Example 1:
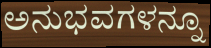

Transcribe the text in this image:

ಅನುಭವಗಳನ್ನೂ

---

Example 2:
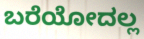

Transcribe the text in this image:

ಬರೆಯೋದಲ್ಲ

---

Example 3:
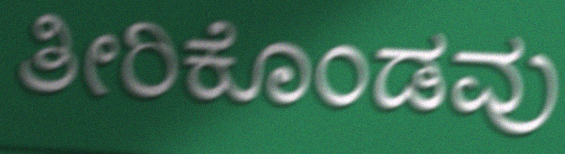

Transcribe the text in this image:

ತೀರಿಕೊಂಡವು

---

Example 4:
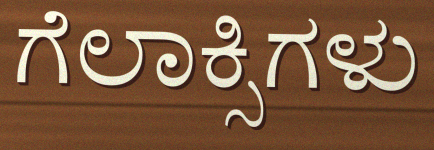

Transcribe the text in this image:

ಗೆಲಾಕ್ಸಿಗಳು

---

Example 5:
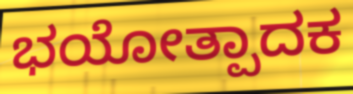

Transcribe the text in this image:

ಭಯೋತ್ಪಾದಕ